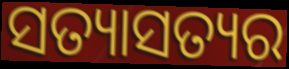
ସତ୍ୟାସତ୍ୟର